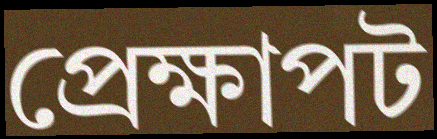
প্রেক্ষাপট